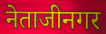
नेताजीनगर